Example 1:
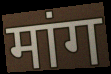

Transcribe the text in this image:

मांग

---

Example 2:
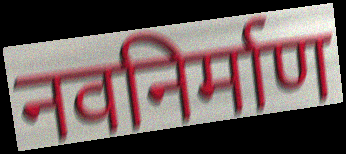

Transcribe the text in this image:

नवनिर्माण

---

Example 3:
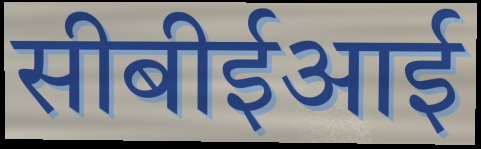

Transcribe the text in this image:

सीबीईआई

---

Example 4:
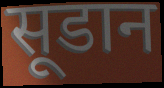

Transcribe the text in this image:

सूडान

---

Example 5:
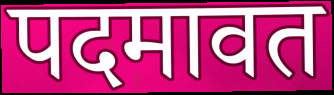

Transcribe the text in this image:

पदमावत